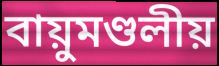
বায়ুমণ্ডলীয়